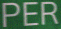
PER